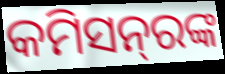
କମିସନ୍‍ରଙ୍କ